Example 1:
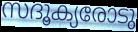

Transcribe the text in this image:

സദൂക്യരോടു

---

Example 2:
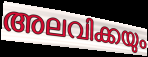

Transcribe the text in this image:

അലവിക്കയും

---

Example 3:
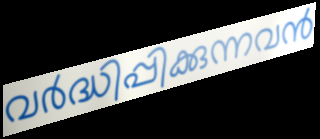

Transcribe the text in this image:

വർദ്ധിപ്പിക്കുന്നവൻ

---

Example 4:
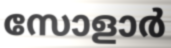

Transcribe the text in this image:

സോളാർ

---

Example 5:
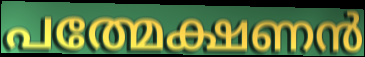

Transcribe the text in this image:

പത്മേക്ഷണൻ